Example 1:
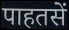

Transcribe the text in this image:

पाहतसें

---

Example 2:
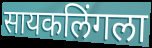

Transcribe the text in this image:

सायकलिंगला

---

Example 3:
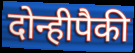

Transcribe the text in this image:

दोन्हीपैकी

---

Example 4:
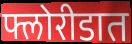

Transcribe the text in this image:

फ्लोरीडात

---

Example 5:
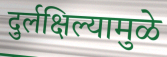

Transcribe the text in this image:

दुर्लक्षिल्यामुळे